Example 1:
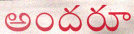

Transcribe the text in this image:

అందరూ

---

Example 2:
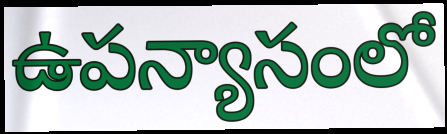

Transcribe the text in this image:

ఉపన్యాసంలో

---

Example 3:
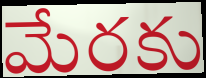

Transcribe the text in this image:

మేరకు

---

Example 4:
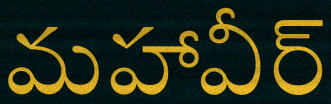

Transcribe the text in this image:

మహావీర్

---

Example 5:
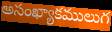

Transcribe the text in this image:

అసంఖ్యాకములుగ